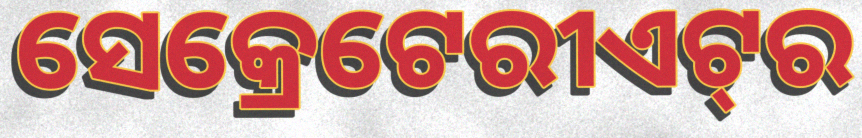
ସେକ୍ରେଟେରୀଏଟ୍‍ର